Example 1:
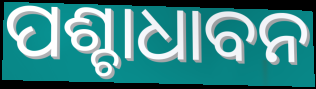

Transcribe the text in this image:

ପଶ୍ଚାଧାବନ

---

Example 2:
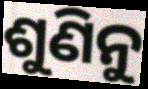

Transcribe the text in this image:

ଶୁଣିନୁ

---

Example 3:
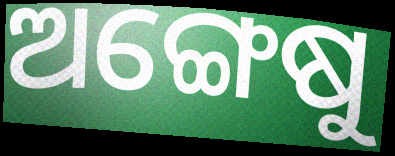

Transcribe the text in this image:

ଅଙ୍ଗେଷୁ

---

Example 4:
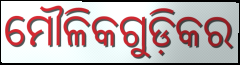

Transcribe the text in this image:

ମୌଳିକଗୁଡ଼ିକର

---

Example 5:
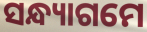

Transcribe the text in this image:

ସନ୍ଧ୍ୟାଗମେ